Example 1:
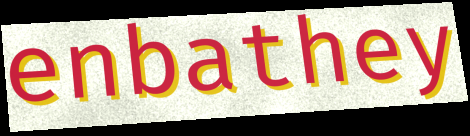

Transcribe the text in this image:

enbathey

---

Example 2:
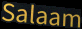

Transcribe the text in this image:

Salaam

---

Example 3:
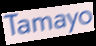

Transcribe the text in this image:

Tamayo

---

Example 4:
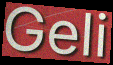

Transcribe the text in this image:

Geli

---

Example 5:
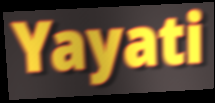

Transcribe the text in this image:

Yayati